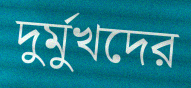
দুর্মুখদের